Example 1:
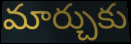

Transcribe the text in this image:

మార్చుకు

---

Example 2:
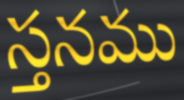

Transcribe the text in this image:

స్తనము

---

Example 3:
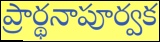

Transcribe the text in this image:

ప్రార్థనాపూర్వక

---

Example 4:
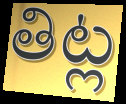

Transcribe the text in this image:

తిట్ల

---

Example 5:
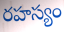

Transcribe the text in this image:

రహస్యం